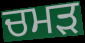
ਚਮੜ